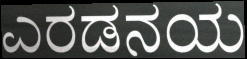
ಎರಡನಯ